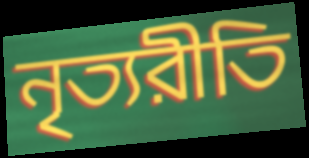
নৃত্যরীতি